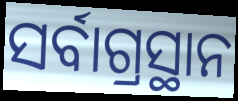
ସର୍ବାଗ୍ରସ୍ଥାନ